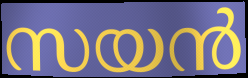
സയൻ